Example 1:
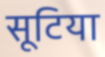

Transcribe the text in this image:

सूटिया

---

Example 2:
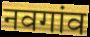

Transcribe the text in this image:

नवगांव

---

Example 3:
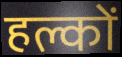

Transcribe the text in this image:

हल्कों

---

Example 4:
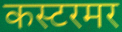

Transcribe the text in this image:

कस्टरमर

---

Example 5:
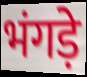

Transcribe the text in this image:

भंगड़े